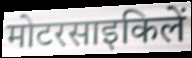
मोटरसाइकिलें